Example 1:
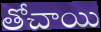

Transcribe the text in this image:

తోచాయి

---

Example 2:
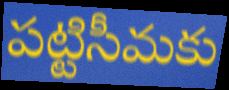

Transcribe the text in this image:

పట్టిసీమకు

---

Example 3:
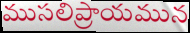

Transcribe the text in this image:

ముసలిప్రాయమున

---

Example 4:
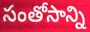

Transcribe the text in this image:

సంతోసాన్ని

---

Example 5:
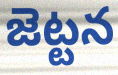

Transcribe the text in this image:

జెట్టన